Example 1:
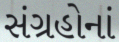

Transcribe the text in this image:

સંગ્રહોનાં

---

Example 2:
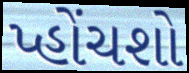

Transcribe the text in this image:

પ્હોંચશો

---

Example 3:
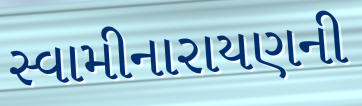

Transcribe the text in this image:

સ્વામીનારાયણની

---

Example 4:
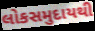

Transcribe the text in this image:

લોકસમુદાયથી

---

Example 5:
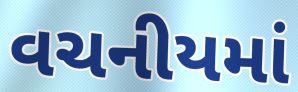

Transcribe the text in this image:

વચનીયમાં